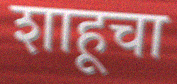
शाहूचा